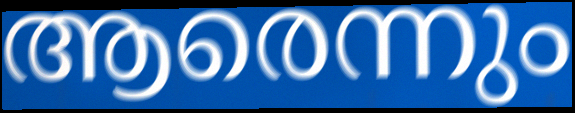
ആരെന്നും